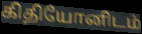
கிதியோனிடம்